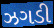
ઝગડી